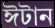
ঈটান